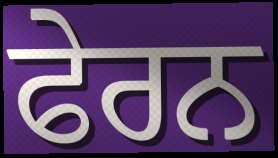
ਫੇਰਨ